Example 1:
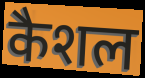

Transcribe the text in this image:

कैशल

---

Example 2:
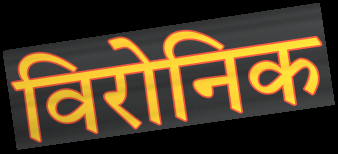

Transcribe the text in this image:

विरोनिक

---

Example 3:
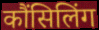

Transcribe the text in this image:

कौंसिलिंग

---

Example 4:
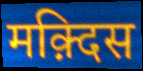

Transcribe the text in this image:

मक़्दिस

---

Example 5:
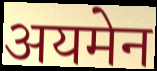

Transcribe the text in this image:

अयमेन